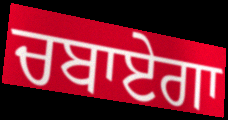
ਚਬਾਏਗਾ